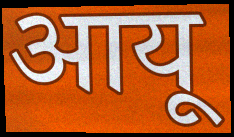
आयू